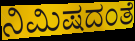
ನಿಮಿಷದಂತೆ